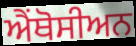
ਐਂਥੋਸੀਅਨ